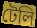
টেলি